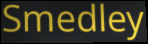
Smedley